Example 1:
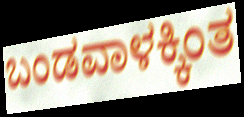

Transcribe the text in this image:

ಬಂಡವಾಳಕ್ಕಿಂತ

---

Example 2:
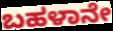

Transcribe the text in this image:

ಬಹಳಾನೇ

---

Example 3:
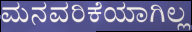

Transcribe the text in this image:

ಮನವರಿಕೆಯಾಗಿಲ್ಲ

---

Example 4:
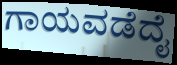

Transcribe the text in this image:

ಗಾಯವಡೆದೈ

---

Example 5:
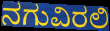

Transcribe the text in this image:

ನಗುವಿರಲಿ